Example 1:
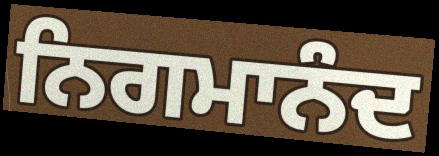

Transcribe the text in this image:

ਨਿਗਮਾਨੰਦ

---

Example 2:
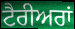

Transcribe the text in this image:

ਟੈਰੀਅਰਾਂ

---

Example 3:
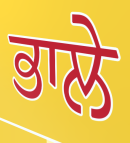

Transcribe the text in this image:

ਭਾਲੇ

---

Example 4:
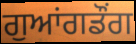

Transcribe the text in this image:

ਗੁਆਂਗਡੌਂਗ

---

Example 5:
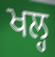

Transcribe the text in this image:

ਖਲ੍ਹ